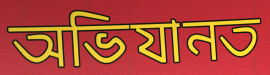
অভিযানত